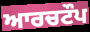
ਆਰਚਟੌਪ